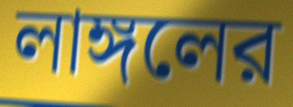
লাঙ্গলের